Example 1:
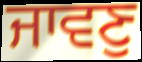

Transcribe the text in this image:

ਜਾਵਣੁ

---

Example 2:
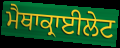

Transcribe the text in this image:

ਮੈਥਾਕ੍ਰਾਈਲੇਟ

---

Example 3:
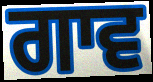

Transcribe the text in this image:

ਗਾਵ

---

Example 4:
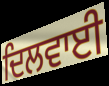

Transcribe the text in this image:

ਦਿਲਵਾਈ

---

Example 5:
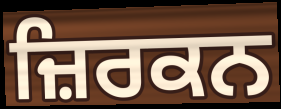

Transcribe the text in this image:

ਜ਼ਿਰਕਨ